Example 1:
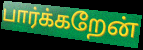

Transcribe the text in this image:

பார்க்கறேன்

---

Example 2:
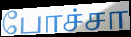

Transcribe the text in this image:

போச்சா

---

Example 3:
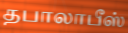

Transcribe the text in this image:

தபாலாபீஸ்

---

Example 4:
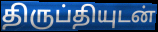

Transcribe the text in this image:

திருப்தியுடன்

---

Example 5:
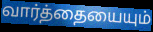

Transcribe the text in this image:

வார்த்தையையும்